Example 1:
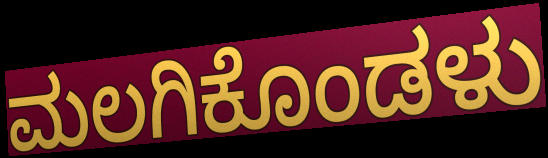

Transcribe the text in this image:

ಮಲಗಿಕೊಂಡಳು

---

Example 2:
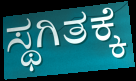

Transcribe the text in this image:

ಸ್ಥಗಿತಕ್ಕೆ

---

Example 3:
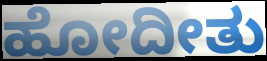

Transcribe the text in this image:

ಹೋದೀತು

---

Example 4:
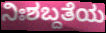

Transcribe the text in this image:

ನಿಃಶಬ್ದತೆಯ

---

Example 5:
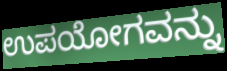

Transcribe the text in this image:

ಉಪಯೋಗವನ್ನು